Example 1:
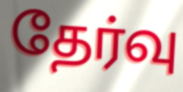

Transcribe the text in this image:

தேர்வு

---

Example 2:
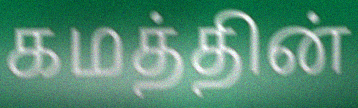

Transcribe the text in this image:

கமத்தின்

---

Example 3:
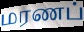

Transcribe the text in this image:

மரணப்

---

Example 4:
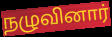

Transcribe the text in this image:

நழுவினார்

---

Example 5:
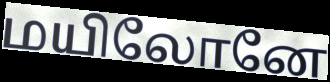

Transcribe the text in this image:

மயிலோனே